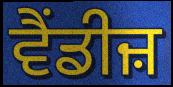
ਵੈਂਡੀਜ਼